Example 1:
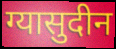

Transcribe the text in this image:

ग्यासुदीन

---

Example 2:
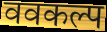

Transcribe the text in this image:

ववकल्प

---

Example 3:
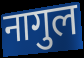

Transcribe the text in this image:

नागुल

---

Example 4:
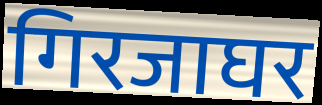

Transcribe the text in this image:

गिरजाघर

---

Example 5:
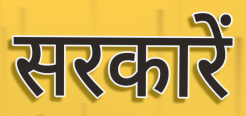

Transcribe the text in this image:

सरकारें